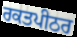
ਰਕਤਪੀਠਰ